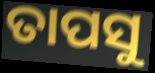
ତାପସୁ